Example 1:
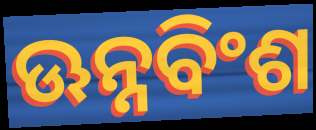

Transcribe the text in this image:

ଊନ୍ନବିଂଶ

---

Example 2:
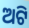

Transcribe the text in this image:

ଅଟି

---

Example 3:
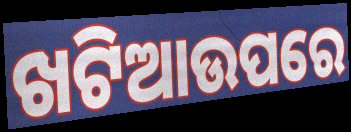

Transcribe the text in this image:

ଖଟିଆଉପରେ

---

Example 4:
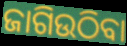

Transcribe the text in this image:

ଜାଗିଉଠିବା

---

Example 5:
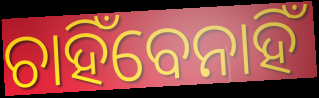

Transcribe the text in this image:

ଚାହିଁବେନାହିଁ